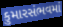
કુમારસંભવમાં